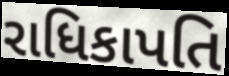
રાધિકાપતિ